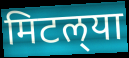
मिटल्या